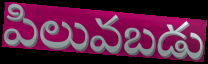
పిలువబడు